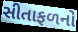
સીતાફળનો